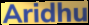
Aridhu